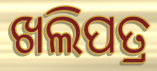
ଖଲିପତ୍ର